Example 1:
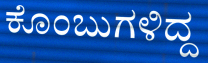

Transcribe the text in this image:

ಕೊಂಬುಗಳಿದ್ದ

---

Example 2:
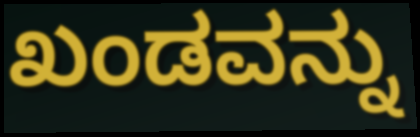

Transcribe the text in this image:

ಖಂಡವನ್ನು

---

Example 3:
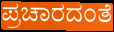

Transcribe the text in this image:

ಪ್ರಚಾರದಂತೆ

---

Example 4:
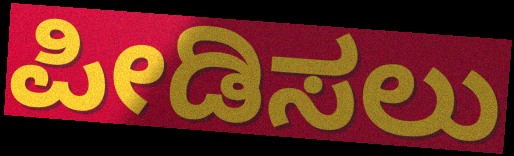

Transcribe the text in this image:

ಪೀಡಿಸಲು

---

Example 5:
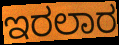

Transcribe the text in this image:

ಇರಲಾರ